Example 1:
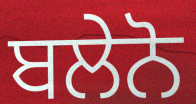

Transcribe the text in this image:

ਬਲੇਨੋ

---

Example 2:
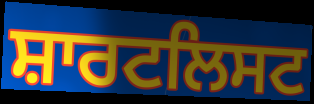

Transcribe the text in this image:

ਸ਼ਾਰਟਲਿਸਟ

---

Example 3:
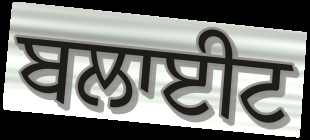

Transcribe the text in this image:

ਬਲਾਈਟ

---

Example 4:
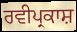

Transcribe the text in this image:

ਰਵੀਪ੍ਰਕਾਸ਼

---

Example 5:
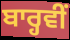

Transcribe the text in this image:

ਬਾਰ੍ਹਵੀਂ